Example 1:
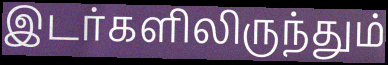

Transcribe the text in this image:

இடர்களிலிருந்தும்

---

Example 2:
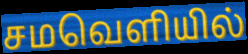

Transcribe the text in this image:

சமவெளியில்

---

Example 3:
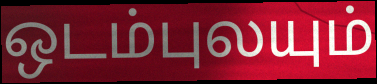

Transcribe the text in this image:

ஒடம்புலயும்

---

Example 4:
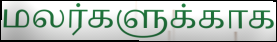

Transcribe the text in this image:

மலர்களுக்காக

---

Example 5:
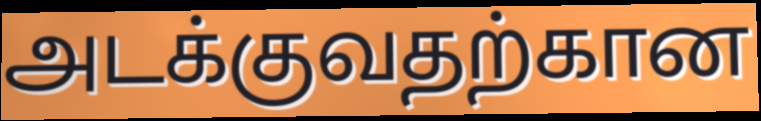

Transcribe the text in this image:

அடக்குவதற்கான